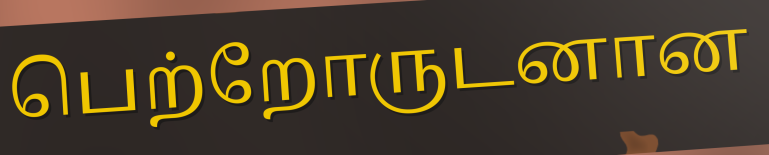
பெற்றோருடனான